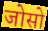
जोसो